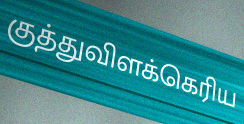
குத்துவிளக்கெரிய